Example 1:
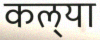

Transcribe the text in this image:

कल्या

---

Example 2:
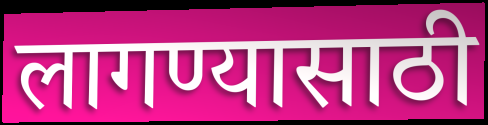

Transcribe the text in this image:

लागण्यासाठी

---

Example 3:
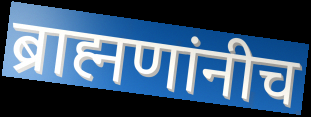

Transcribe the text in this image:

ब्राह्मणांनीच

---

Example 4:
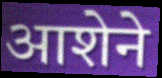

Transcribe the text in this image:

आशेने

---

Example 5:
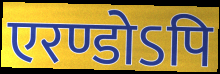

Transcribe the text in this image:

एरण्डोऽपि